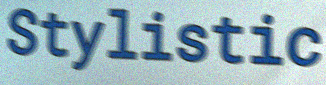
Stylistic